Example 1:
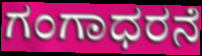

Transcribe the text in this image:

ಗಂಗಾಧರನೆ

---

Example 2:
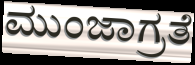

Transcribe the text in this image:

ಮುಂಜಾಗ್ರತೆ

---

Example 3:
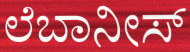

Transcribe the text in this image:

ಲೆಬಾನೀಸ್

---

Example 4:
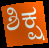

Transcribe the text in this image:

ಶಿಕ್ಷ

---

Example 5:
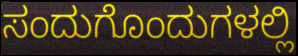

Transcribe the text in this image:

ಸಂದುಗೊಂದುಗಳಲ್ಲಿ